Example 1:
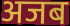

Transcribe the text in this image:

अजब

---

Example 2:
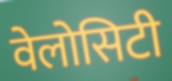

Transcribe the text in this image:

वेलोसिटी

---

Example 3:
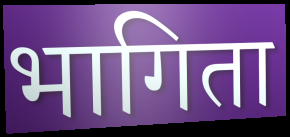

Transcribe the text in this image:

भागिता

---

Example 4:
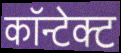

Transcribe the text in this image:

कॉन्टेक्ट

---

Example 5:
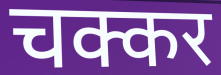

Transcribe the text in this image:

चक्कर